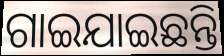
ଗାଇଯାଇଛନ୍ତି